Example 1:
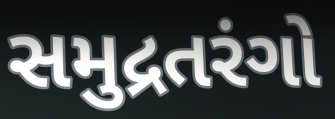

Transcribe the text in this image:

સમુદ્રતરંગો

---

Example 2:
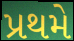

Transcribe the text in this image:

પ્રથમે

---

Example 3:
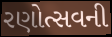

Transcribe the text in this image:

રણોત્સવની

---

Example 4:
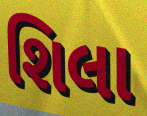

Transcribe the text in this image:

શિલા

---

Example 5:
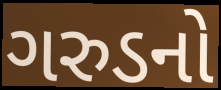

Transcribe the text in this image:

ગરુડનો